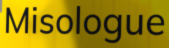
Misologue